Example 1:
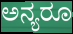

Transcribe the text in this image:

ಅನ್ಯರೂ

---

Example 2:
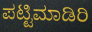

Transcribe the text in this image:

ಪಟ್ಟಿಮಾಡಿರಿ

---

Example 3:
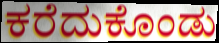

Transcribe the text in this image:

ಕರೆದುಕೊಂಡು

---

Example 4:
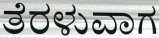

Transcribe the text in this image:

ತೆರಳುವಾಗ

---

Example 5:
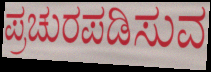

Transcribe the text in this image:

ಪ್ರಚುರಪಡಿಸುವ